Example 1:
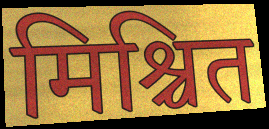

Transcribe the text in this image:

मिश्चित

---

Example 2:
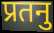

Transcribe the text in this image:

प्रतनु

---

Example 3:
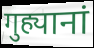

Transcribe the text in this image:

गुह्यानां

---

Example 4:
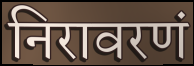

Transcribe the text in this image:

निरावरणं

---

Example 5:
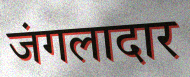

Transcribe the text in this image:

जंगलादार